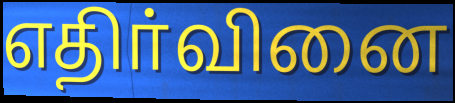
எதிர்வினை